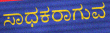
ಸಾಧಕರಾಗುವ